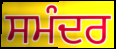
ਸਮੰਦਰ